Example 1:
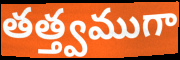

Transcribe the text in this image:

తత్త్వముగా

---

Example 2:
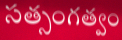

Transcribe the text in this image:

సత్సంగత్వం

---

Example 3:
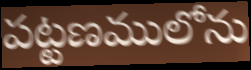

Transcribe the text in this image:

పట్టణములోను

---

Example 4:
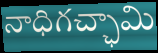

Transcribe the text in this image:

నాధిగచ్ఛామి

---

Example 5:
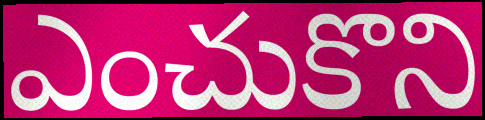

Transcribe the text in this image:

ఎంచుకొని